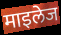
माइलेज